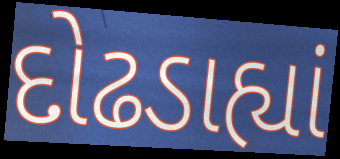
દોઢડાહ્યાં